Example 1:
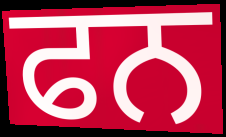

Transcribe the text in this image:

ਫਨ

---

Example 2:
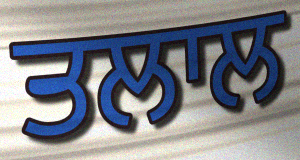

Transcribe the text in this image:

ਤਲਾਲ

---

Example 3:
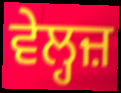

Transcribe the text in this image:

ਵੇਲ੍ਹਜ਼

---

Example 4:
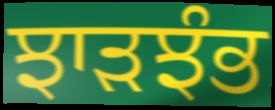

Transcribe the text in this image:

ਝਾੜਝੰਭ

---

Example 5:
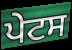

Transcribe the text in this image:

ਪੇਟਸ